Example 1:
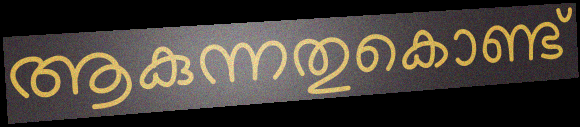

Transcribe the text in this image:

ആകുന്നതുകൊണ്ട്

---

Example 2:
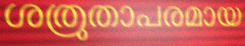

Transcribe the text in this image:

ശത്രുതാപരമായ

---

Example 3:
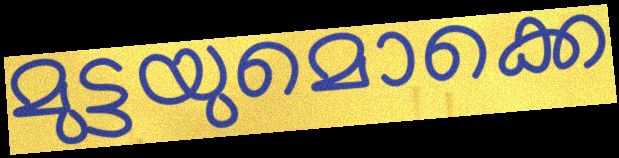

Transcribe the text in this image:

മുട്ടയുമൊക്കെ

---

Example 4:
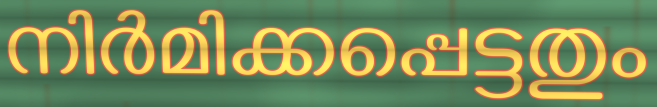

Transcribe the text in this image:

നിർമിക്കപ്പെട്ടതും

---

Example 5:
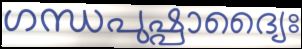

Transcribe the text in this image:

ഗന്ധപുഷ്പാദ്യൈഃ